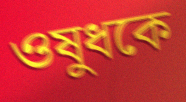
ওষুধকে